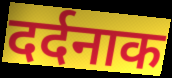
दर्दनाक